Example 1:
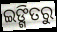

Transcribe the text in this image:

ଇଙ୍ଗିତରୁ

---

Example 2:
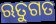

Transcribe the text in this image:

ଋତୁଗତ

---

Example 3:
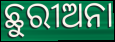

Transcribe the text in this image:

ଛୁରୀଅନା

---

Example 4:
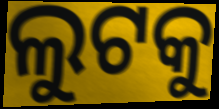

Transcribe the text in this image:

ଲୁଟକୁ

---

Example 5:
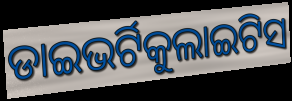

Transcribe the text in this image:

ଡାଇଭର୍ଟିକୁଲାଇଟିସ